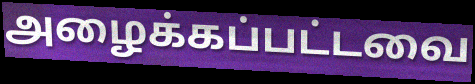
அழைக்கப்பட்டவை